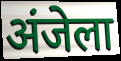
अंजेला